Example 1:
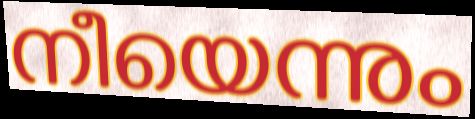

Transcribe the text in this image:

നീയെന്നും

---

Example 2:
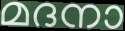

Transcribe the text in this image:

മദനാ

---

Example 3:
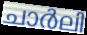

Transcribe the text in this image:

ചാർലി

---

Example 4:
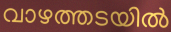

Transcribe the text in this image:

വാഴത്തടയിൽ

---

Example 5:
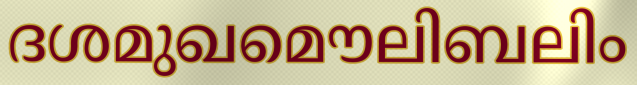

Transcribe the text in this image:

ദശമുഖമൌലിബലിം